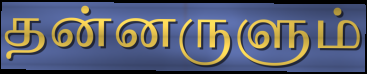
தன்னருளும்